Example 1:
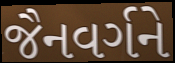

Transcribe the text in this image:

જૈનવર્ગને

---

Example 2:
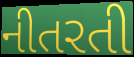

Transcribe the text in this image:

નીતરતી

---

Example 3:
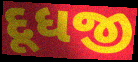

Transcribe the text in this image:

દૂધજી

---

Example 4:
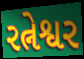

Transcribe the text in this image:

રત્નેશ્વર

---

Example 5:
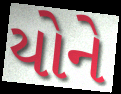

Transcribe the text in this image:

યોને